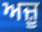
ਅਜ਼ੂ